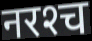
नरश्च